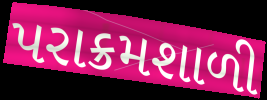
પરાક્રમશાળી